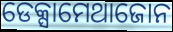
ଡେକ୍ସାମେଥାଜୋନ